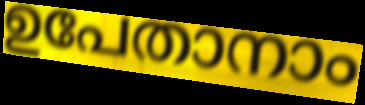
ഉപേതാനാം